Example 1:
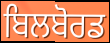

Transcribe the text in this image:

ਬਿਲਬੋਰਡ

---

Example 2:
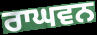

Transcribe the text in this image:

ਰਾਘਵਨ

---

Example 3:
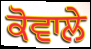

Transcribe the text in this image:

ਕੋਵਾਲੇ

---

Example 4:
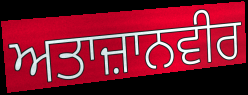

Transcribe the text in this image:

ਅਤਾਜ਼ਾਨਵੀਰ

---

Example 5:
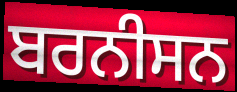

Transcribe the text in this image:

ਬਰਨੀਸਨ